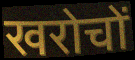
खरोचों